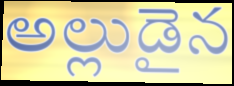
అల్లుడైన